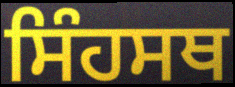
ਸਿੰਹਸਥ